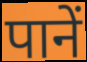
पानें